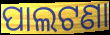
ପାଲଟଣା